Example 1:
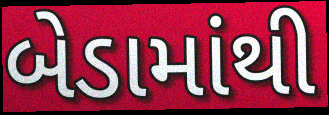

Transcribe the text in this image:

બેડામાંથી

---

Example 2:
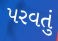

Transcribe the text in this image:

પરવતું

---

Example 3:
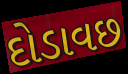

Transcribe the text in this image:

દોડાવછ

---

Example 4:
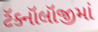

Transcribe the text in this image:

ટૅક્નૉલૉજીમાં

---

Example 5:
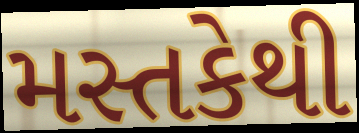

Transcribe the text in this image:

મસ્તકેથી